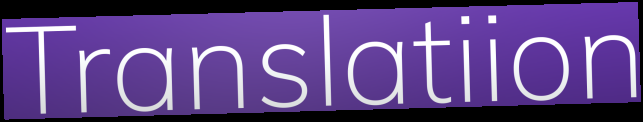
Translatiion